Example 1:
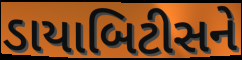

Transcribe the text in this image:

ડાયાબિટીસને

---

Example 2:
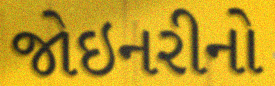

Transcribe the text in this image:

જોઇનરીનો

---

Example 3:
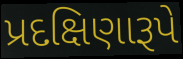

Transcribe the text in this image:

પ્રદક્ષિણારૂપે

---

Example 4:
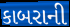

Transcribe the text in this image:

કાબરાની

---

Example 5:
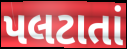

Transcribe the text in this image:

પલટાતાં